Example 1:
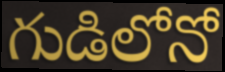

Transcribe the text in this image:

గుడిలోనో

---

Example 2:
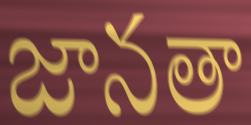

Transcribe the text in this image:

జానతా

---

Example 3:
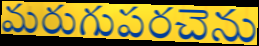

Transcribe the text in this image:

మరుగుపరచెను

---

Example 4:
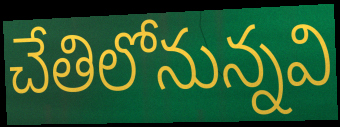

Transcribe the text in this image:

చేతిలోనున్నవి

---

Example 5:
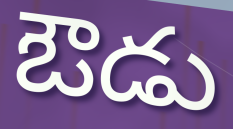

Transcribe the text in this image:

ఔడు